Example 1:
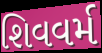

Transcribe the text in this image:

શિવવર્મ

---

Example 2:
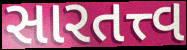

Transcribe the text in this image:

સારતત્ત્વ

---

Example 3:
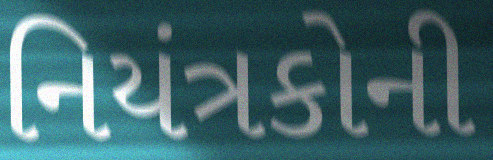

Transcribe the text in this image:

નિયંત્રકોની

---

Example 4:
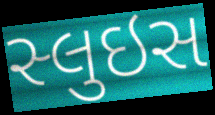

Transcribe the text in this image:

સ્લુઇસ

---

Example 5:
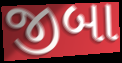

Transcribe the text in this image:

જીબા